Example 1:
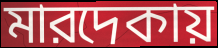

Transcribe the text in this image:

মারদেকায়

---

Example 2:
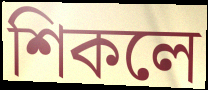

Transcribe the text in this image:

শিকলে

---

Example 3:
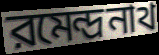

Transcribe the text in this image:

রমেন্দ্রনাথ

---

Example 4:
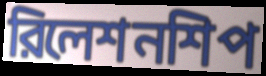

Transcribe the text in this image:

রিলেশনশিপ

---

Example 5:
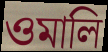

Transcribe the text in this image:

ওমালি